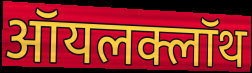
ऑयलक्लॉथ